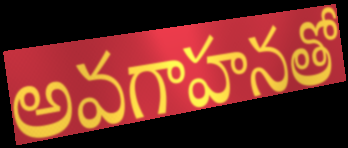
అవగాహనతో